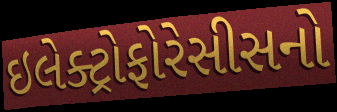
ઇલેક્ટ્રોફોરેસીસનો